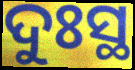
ଦୁଃସ୍ଥ